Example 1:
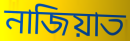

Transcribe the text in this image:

নাজিয়াত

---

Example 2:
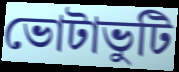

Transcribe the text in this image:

ভোটাভুটি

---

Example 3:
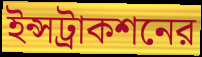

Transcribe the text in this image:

ইন্সট্রাকশনের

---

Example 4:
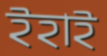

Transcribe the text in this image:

ইহাই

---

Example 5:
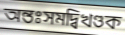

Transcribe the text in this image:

অন্তঃসমদ্বিখণ্ডক